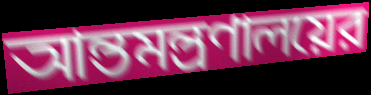
আন্তমন্ত্রণালয়ের